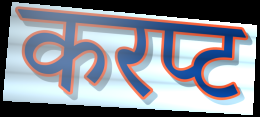
करप्ट